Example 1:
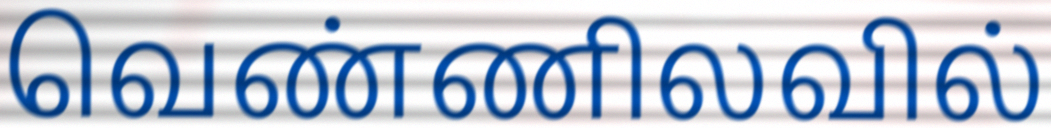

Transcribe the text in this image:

வெண்ணிலவில்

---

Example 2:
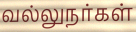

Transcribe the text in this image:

வல்லுநர்கள்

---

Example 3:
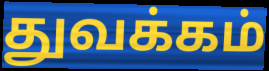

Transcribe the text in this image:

துவக்கம்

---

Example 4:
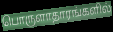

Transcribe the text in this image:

பொருளாதாரங்களில்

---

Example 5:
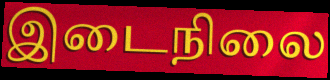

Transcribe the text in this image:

இடைநிலை